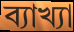
ব্যাখ্যা